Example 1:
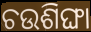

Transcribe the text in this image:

ଚଉଶିଙ୍ଘା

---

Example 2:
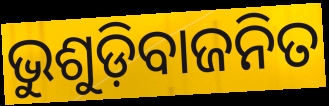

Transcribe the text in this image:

ଭୁଶୁଡ଼ିବାଜନିତ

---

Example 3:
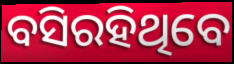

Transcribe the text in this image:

ବସିରହିଥିବେ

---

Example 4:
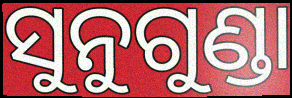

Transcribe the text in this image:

ସୁନୁଗୁଣ୍ଡା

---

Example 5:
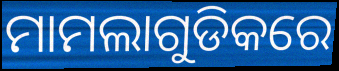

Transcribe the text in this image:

ମାମଲାଗୁଡିକରେ